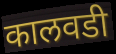
कालवडी